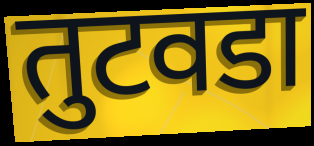
तुटवडा